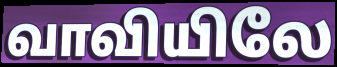
வாவியிலே